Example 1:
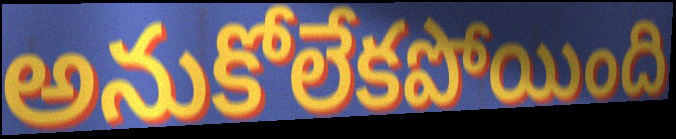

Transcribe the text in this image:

అనుకోలేకపోయింది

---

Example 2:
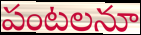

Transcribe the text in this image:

పంటలనూ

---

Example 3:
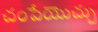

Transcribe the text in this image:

చంపేయొచ్చు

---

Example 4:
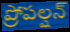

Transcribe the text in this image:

ప్రోపల్షన్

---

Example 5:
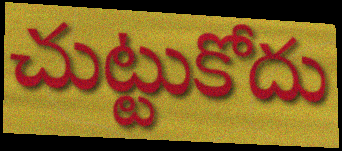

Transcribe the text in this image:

చుట్టుకోదు